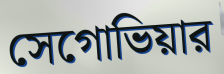
সেগোভিয়ার